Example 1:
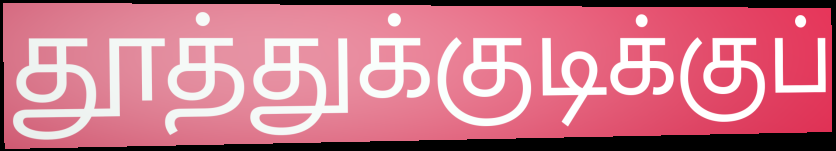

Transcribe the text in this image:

தூத்துக்குடிக்குப்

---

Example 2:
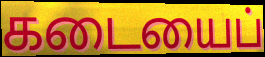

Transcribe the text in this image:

கடையைப்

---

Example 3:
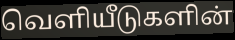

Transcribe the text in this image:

வெளியீடுகளின்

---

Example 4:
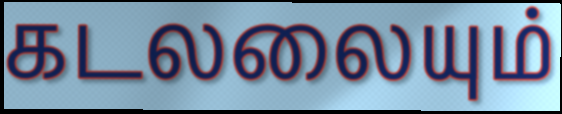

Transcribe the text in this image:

கடலலையும்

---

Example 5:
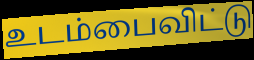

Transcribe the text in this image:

உடம்பைவிட்டு